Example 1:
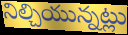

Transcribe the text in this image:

నిల్చియున్నట్లు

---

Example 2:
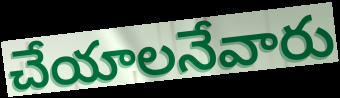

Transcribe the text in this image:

చేయాలనేవారు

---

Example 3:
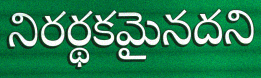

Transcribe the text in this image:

నిరర్థకమైనదని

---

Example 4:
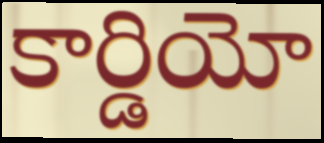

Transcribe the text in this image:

కార్డియో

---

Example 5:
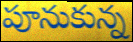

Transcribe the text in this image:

పూనుకున్న